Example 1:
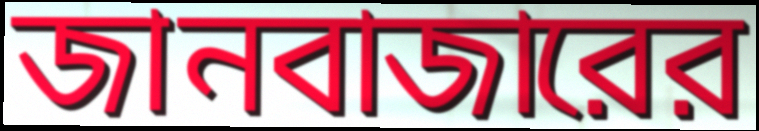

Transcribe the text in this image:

জানবাজারের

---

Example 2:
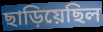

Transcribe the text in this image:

ছাড়িয়েছিল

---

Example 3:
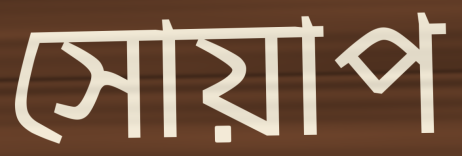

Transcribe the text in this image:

সোয়াপ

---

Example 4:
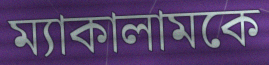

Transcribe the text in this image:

ম্যাকালামকে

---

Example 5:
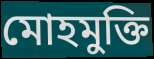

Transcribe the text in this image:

মোহমুক্তি